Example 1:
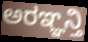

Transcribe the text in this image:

ಅರಞ್ಞನ್ತಿ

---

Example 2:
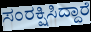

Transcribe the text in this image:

ಸಂರಕ್ಷಿಸಿದ್ದಾರೆ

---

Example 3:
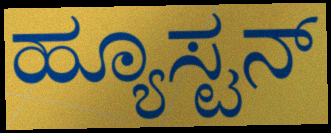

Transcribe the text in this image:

ಹ್ಯೂಸ್ಟನ್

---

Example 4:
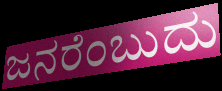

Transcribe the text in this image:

ಜನರೆಂಬುದು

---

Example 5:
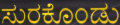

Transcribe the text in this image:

ಸುರಕೊಂಡು